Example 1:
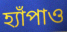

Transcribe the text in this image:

হ্যাঁপাও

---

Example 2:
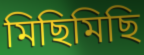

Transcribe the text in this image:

মিছিমিছি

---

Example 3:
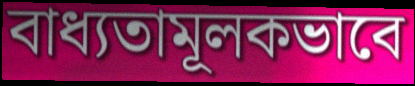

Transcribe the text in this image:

বাধ্যতামূলকভাবে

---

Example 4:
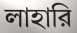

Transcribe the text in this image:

লাহারি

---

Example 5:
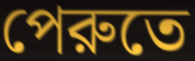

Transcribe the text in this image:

পেরুতে